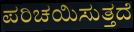
ಪರಿಚಯಿಸುತ್ತದೆ